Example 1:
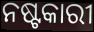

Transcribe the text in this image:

ନଷ୍ଟକାରୀ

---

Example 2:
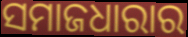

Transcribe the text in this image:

ସମାଜଧାରାର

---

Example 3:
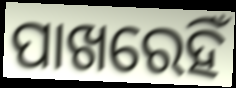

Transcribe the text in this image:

ପାଖରେହିଁ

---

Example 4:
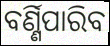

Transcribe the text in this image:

ବର୍ଣ୍ଣିପାରିବ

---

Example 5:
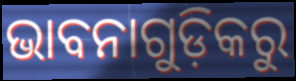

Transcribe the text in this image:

ଭାବନାଗୁଡ଼ିକରୁ